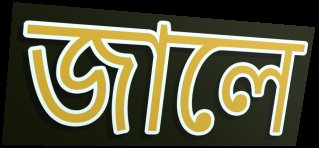
জালে